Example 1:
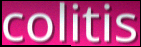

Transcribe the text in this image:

colitis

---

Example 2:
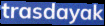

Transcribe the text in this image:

trasdayak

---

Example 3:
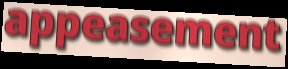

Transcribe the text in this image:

appeasement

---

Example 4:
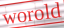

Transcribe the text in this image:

worold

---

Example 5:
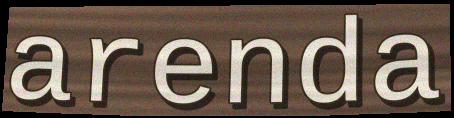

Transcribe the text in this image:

arenda